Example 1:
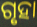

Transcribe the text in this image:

ଗୃହା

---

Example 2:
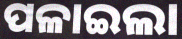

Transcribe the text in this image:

ପଳାଇଲା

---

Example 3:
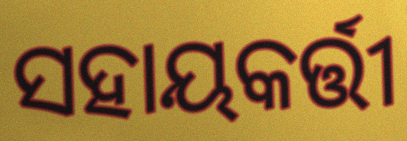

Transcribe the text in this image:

ସହାୟକର୍ତ୍ତୀ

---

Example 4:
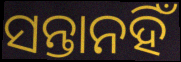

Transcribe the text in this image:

ସନ୍ତାନହିଁ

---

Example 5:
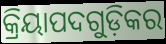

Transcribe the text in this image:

କ୍ରିୟାପଦଗୁଡ଼ିକର